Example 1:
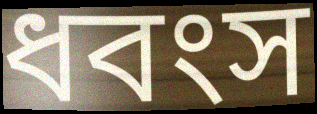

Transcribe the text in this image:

ধবংস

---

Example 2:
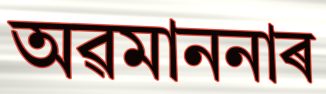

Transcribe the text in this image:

অৱমাননাৰ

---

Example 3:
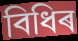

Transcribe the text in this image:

বিধিৰ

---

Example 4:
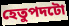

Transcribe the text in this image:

হেতুপদটো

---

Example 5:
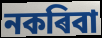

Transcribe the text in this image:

নকৰিবা